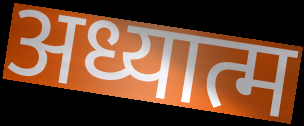
अध्यात्म